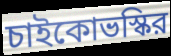
চাইকোভস্কির